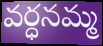
వర్ధనమ్మ